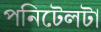
পনিটেলটা